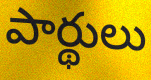
పార్థులు